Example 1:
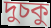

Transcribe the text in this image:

দুচকু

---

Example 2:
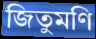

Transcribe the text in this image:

জিতুমণি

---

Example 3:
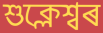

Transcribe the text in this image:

শুক্লেশ্বৰ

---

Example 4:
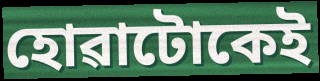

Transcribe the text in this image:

হোৱাটোকেই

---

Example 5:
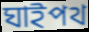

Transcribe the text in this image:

ঘাইপথ